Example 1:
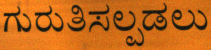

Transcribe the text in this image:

ಗುರುತಿಸಲ್ಪಡಲು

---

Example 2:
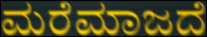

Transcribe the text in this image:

ಮರೆಮಾಜದೆ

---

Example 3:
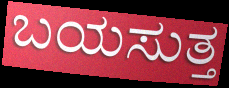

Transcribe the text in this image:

ಬಯಸುತ್ತ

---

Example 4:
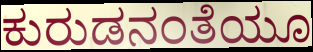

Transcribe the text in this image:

ಕುರುಡನಂತೆಯೂ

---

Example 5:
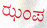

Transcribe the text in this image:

ಝಂಪ